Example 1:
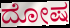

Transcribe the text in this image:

ದೋಷ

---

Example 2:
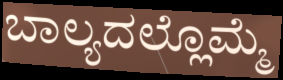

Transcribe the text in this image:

ಬಾಲ್ಯದಲ್ಲೊಮ್ಮೆ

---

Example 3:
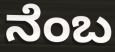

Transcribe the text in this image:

ನೆಂಬ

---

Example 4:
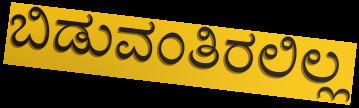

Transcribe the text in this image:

ಬಿಡುವಂತಿರಲಿಲ್ಲ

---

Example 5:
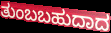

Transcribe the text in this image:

ತುಂಬಬಹುದಾದ